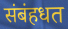
संबंहधत